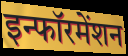
इन्फॉरमेंशन